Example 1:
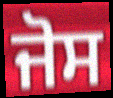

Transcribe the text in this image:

ਜੋਸ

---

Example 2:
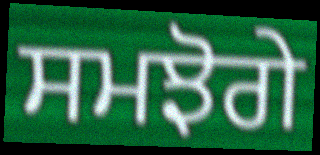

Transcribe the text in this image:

ਸਮਝੋਗੇ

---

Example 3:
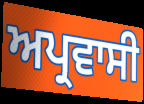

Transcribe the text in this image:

ਅਪ੍ਰਵਾਸੀ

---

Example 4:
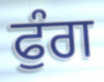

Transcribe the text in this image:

ਫੁੰਗ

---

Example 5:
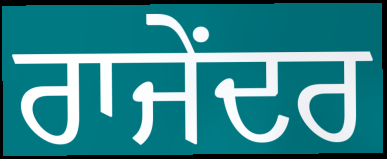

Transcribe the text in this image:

ਰਾਜੇਂਦਰ